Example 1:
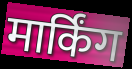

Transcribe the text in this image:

मार्किंग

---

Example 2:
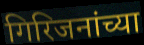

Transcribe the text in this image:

गिरिजनांच्या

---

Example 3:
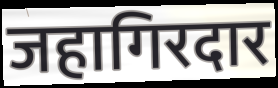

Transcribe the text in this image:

जहागिरदार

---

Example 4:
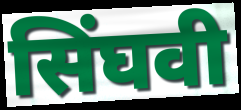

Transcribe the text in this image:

सिंघवी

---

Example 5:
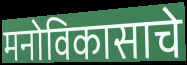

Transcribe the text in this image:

मनोविकासाचे